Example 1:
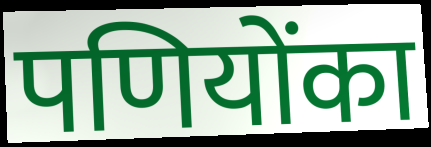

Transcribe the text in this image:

पणियोंका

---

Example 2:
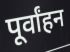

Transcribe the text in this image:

पूर्वांहन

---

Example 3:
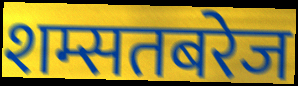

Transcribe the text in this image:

शम्सतबरेज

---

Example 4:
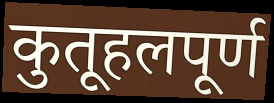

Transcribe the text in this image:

कुतूहलपूर्ण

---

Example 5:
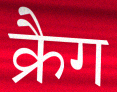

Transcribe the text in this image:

क्रैग